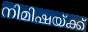
നിമിഷയ്ക്ക്